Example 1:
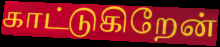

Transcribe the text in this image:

காட்டுகிறேன்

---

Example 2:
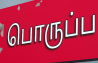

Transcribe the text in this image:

பொருப்ப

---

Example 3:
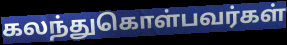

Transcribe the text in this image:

கலந்துகொள்பவர்கள்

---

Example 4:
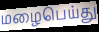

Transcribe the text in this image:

மழைபெய்து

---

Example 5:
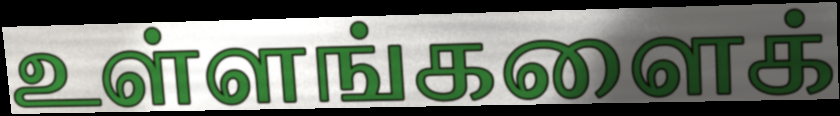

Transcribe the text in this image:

உள்ளங்களைக்